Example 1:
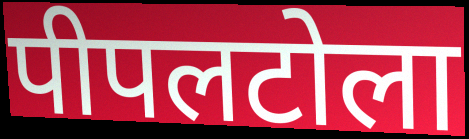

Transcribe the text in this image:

पीपलटोला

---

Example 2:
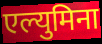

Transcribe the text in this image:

एल्युमिना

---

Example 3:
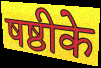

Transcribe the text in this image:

षष्ठीके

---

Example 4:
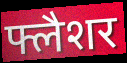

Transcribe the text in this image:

फ्लैशर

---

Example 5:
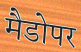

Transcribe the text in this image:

मैडोपर